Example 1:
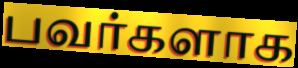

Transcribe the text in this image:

பவர்களாக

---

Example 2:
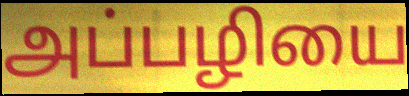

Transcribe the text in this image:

அப்பழியை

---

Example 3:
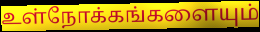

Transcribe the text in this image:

உள்நோக்கங்களையும்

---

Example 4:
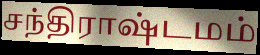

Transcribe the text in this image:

சந்திராஷ்டமம்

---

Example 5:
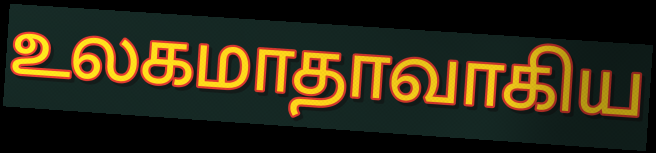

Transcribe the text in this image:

உலகமாதாவாகிய